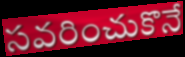
సవరించుకొనే